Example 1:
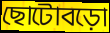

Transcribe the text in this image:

ছোটোবড়ো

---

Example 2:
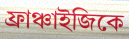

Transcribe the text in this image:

ফ্রাঞ্চাইজিকে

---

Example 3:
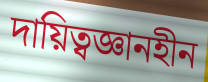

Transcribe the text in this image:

দায়িত্বজ্ঞানহীন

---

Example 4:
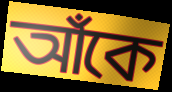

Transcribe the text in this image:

আঁকে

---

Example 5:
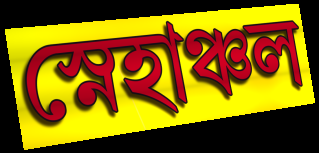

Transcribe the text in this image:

স্নেহাঞ্চল